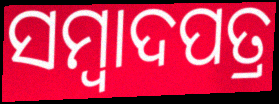
ସମ୍ୱାଦପତ୍ର